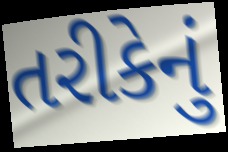
તરીકેનું